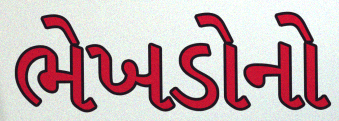
ભેખડોનો